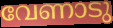
വേണാടു